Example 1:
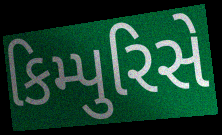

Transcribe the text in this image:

કિમ્પુરિસે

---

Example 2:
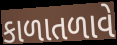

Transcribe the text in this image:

કાળાતળાવે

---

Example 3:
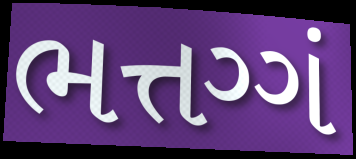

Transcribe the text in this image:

ભત્તગ્ગં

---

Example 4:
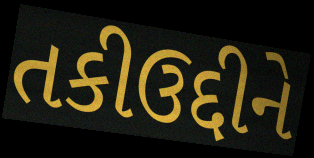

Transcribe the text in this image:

તકીઉદ્દીને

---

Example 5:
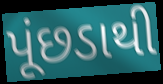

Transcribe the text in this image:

પૂંછડાથી